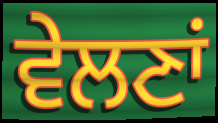
ਵੇਲਣਾਂ